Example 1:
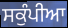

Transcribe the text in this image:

ਸਕੁੰਪੀਆ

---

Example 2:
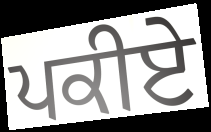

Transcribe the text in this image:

ਪਕੀਏ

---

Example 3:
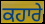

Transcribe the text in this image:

ਕਹਾਰੇ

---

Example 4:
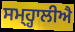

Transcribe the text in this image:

ਸਮ੍ਹ੍ਹਾਲੀਐ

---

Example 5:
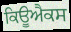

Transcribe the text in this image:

ਕਿਊਐਕਸ